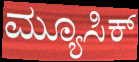
ಮ್ಯೂಸಿಕ್